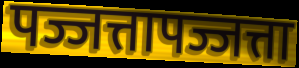
पज्जत्तापज्जत्ता